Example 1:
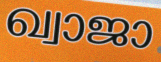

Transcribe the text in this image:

ഖ്വാജാ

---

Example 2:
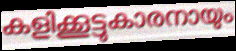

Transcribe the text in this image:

കളിക്കൂട്ടുകാരനായും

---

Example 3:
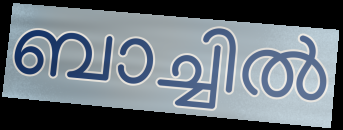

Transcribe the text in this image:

ബാച്ചിൽ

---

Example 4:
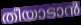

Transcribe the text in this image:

തീയാടാൻ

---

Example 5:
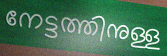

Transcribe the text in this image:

നേട്ടത്തിനുള്ള